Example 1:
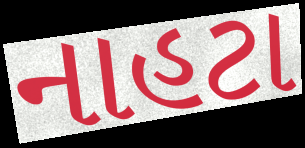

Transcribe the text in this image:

નાહટા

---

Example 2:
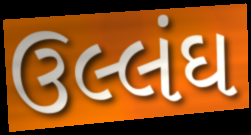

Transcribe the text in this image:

ઉલ્લંઘ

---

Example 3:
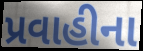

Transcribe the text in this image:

પ્રવાહીના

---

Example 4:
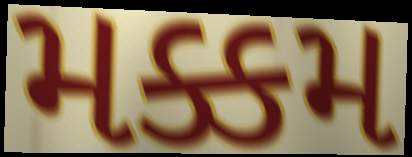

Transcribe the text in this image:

મક્કમ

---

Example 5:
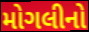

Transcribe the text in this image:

મોગલીનો